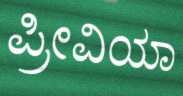
ಪ್ರೀವಿಯಾ